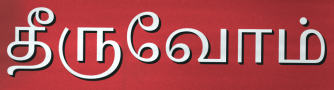
தீருவோம்